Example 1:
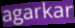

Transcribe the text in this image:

agarkar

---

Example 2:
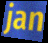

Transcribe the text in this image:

jan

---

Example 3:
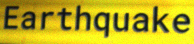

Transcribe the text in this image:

Earthquake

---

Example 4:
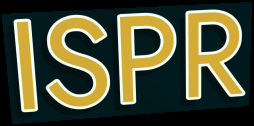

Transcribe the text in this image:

ISPR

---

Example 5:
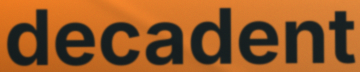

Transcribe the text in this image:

decadent